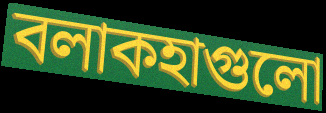
বলাকহাগুলো